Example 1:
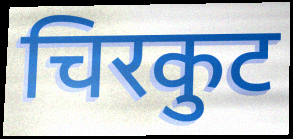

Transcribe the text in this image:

चिरकुट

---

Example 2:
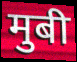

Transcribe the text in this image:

मुबी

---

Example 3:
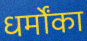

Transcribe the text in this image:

धर्मोंका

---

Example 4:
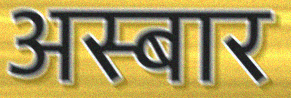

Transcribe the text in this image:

अस्बार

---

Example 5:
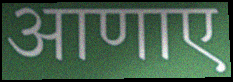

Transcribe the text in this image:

आणाए